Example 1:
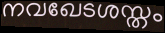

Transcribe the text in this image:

നവഖേടശസ്തം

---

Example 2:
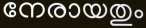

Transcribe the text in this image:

നേരായതും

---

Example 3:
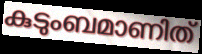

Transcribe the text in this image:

കുടുംബമാണിത്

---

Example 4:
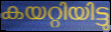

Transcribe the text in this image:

കയറ്റിയിട്ടു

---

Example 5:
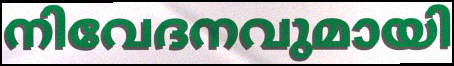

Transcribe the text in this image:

നിവേദനവുമായി